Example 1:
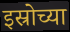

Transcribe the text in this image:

इस्रोच्या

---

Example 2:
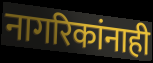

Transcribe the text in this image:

नागरिकांनाही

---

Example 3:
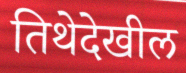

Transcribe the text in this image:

तिथेदेखील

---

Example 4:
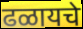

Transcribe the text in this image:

ढळायचे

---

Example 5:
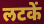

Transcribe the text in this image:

लटकें